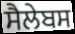
ਸੈਲੇਬਸ